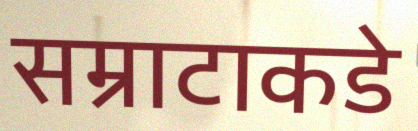
सम्राटाकडे